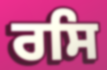
ਰਸਿ